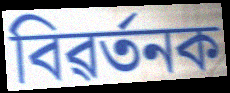
বিৱৰ্তনক